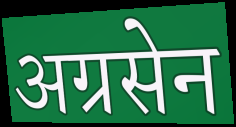
अग्रसेन